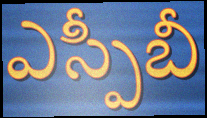
ఎస్పీబీ